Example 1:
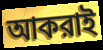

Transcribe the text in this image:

আকরাই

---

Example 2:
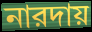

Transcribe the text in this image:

নারদায়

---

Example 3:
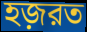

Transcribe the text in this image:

হজ়রত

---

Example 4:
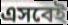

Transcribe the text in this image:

এসবেই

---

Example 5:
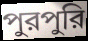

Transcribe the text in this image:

পুরপুরি